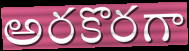
అరకొరగా